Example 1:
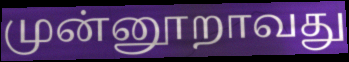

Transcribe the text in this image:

முன்னூறாவது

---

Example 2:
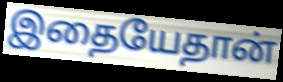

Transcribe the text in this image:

இதையேதான்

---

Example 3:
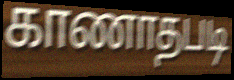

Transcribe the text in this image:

காணாதபடி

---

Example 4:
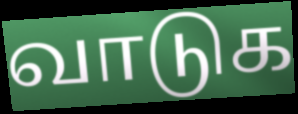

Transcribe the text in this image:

வாடுக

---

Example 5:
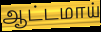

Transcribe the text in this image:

ஆட்டமாய்